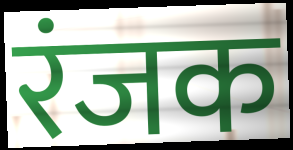
रंजक